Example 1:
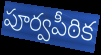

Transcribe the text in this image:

పూర్వపీఠిక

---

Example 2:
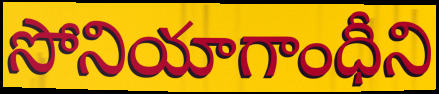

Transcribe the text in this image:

సోనియాగాంధీని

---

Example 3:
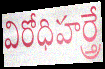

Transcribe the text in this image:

విరోధిహర్త్రే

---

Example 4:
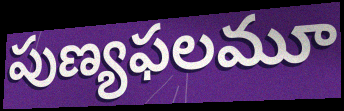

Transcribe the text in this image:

పుణ్యఫలమూ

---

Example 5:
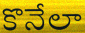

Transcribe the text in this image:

కొనేలా